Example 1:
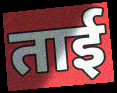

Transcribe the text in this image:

ताई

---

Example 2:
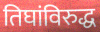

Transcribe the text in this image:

तिघांविरुद्ध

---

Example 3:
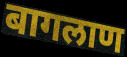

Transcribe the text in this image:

बागलाण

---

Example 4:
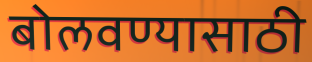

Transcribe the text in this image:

बोलवण्यासाठी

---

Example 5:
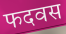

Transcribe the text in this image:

फदवस